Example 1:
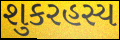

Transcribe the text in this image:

શુકરહસ્ય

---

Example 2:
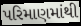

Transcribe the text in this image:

પરિમાણમાંથી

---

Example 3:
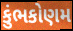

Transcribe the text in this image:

કુંભકોણમ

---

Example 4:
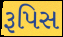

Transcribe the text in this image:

રૂપિસ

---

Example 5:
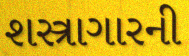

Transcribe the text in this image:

શસ્ત્રાગારની